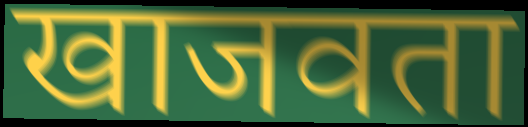
खाजवता